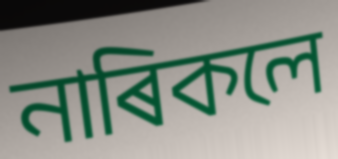
নাৰিকলে